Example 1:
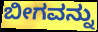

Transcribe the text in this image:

ಬೀಗವನ್ನು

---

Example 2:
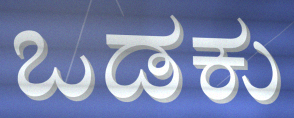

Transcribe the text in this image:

ಒಡಕು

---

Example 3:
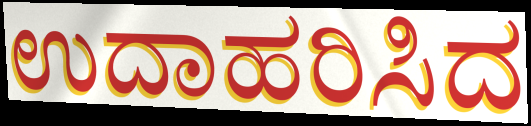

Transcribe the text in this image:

ಉದಾಹರಿಸಿದ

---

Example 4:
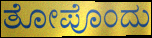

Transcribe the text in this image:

ತೋಪೊಂದು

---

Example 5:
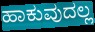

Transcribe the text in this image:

ಹಾಕುವುದಲ್ಲ